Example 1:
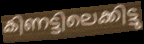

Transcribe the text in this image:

കിണട്ടിലെക്കിട്ടു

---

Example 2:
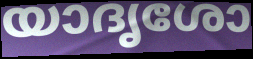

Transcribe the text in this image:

യാദൃശോ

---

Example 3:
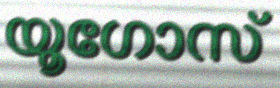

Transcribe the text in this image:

യൂഗോസ്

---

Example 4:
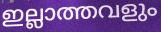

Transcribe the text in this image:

ഇല്ലാത്തവളും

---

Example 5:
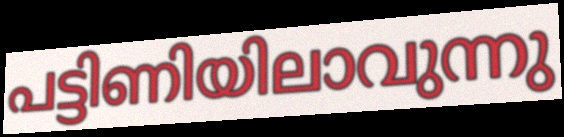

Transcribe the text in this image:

പട്ടിണിയിലാവുന്നു